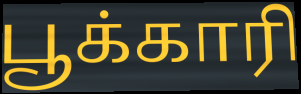
பூக்காரி